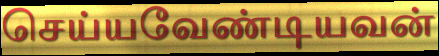
செய்யவேண்டியவன்